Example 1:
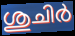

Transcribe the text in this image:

ശുചിർ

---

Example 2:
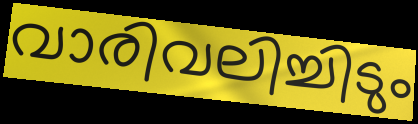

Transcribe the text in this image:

വാരിവലിച്ചിടും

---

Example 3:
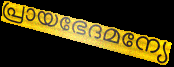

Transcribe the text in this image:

പ്രായഭേദമന്യേ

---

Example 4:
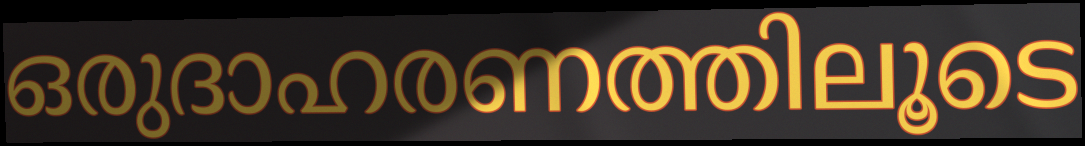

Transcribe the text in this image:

ഒരുദാഹരണത്തിലൂടെ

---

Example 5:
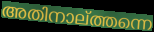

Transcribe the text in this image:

അതിനാല്ത്തന്നെ